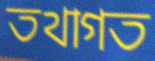
তথাগত